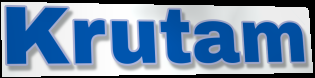
Krutam